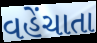
વહેંચાતા